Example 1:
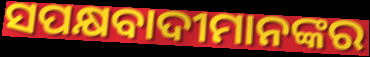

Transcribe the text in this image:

ସପକ୍ଷବାଦୀମାନଙ୍କର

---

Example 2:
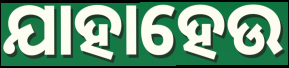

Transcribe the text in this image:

ଯାହାହେଉ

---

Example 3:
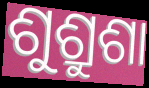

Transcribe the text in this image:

ଶୁଶ୍ରୁଶା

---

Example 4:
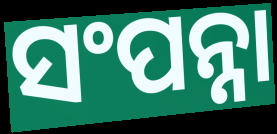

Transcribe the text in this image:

ସଂପନ୍ନା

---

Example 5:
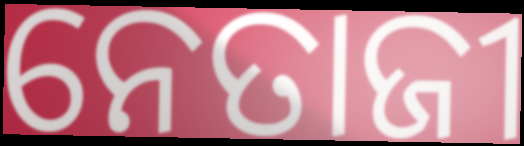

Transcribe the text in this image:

ନେତାଜୀ